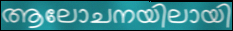
ആലോചനയിലായി